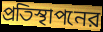
প্রতিস্থাপনের